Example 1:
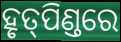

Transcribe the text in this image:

ହୃତ୍‌ପିଣ୍ଡରେ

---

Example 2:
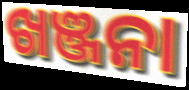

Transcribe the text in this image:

ଖଞ୍ଜନା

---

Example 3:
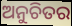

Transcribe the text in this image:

ଅନୁଚିତର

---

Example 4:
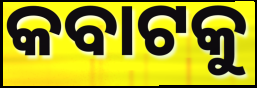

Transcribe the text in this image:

କବାଟକୁ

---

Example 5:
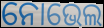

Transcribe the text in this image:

ନୋଭେଲ